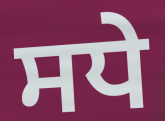
ਸਧੇ